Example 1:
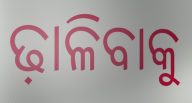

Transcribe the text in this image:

ଢ଼ାଳିବାକୁ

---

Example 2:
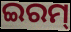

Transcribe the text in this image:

ଇରମ୍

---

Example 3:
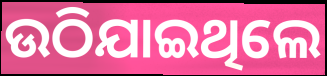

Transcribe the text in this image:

ଉଠିଯାଇଥିଲେ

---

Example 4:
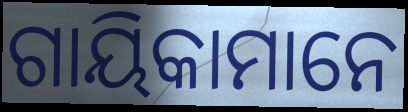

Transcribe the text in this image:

ଗାୟିକାମାନେ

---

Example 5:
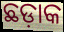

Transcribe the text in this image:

ଛଡ଼ାକ